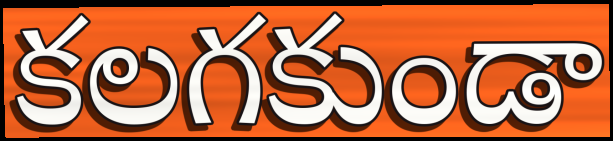
కలగకుండా